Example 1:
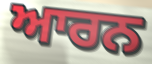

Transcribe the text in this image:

ਆਰਨ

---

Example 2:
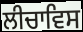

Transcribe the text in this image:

ਲੀਚਾਵਿਸ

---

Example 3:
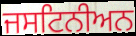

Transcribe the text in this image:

ਜਸਟਿਨੀਅਨ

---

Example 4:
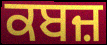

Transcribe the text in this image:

ਕਬਜ਼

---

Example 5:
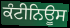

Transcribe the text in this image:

ਕੰਟੀਨਿਊਸ